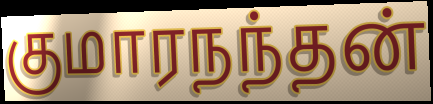
குமாரநந்தன்